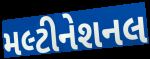
મલ્ટીનેશનલ